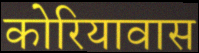
कोरियावास